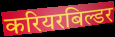
करियरबिल्डर